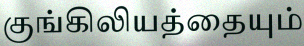
குங்கிலியத்தையும்